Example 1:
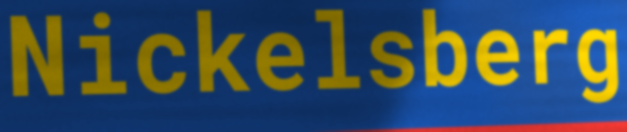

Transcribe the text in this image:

Nickelsberg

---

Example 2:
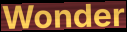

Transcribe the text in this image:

Wonder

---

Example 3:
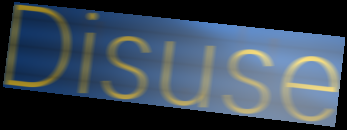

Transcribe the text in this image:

Disuse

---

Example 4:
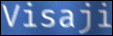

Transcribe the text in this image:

Visaji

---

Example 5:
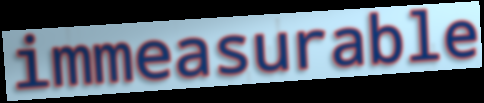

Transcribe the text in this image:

immeasurable